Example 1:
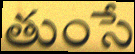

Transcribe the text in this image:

తుంసే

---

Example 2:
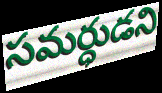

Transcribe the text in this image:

సమర్ధుడని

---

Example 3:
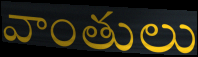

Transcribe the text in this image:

వాంతులు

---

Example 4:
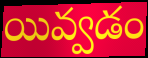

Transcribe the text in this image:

యివ్వడం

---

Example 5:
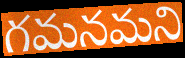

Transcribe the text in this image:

గమనమని